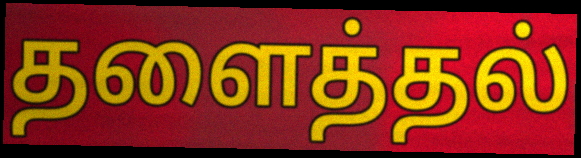
தளைத்தல்